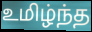
உமிழ்ந்த